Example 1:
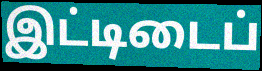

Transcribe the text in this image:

இட்டிடைப்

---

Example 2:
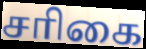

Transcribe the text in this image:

சரிகை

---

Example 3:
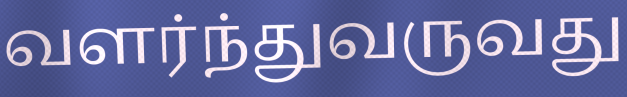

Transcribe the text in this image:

வளர்ந்துவருவது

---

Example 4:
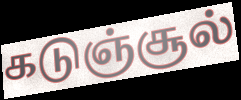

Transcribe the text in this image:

கடுஞ்சூல்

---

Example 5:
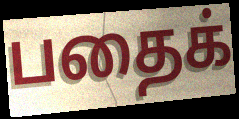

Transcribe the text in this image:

பதைக்